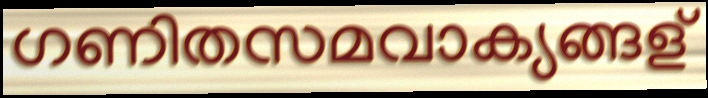
ഗണിതസമവാക്യങ്ങള്